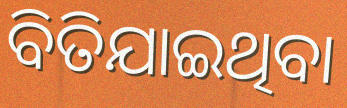
ବିତିଯାଇଥିବା